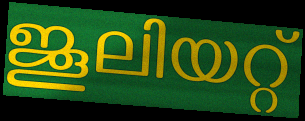
ജൂലിയറ്റ്